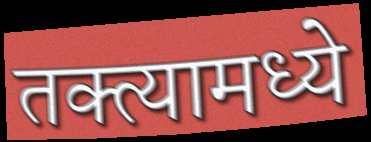
तक्त्यामध्ये